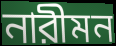
নারীমন